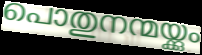
പൊതുനന്മയ്ക്കും